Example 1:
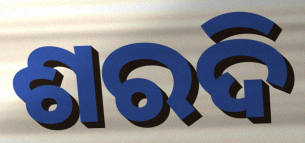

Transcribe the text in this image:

ଶରଦି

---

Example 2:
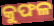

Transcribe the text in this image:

କୁଫଳ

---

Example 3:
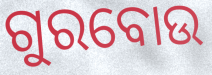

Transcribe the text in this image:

ଗୁରବୋଉ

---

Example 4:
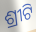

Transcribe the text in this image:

ଶ୍ରୀଟି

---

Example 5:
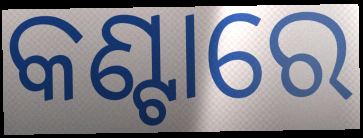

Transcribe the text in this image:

କଣ୍ଟାରେ